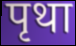
पृथा